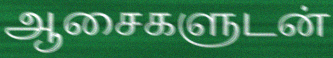
ஆசைகளுடன்